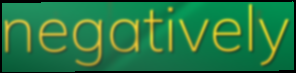
negatively